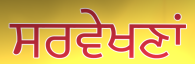
ਸਰਵੇਖਣਾਂ